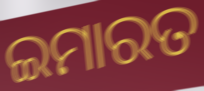
ଇମାରତ